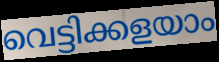
വെട്ടിക്കളയാം